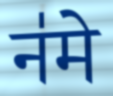
न॑मे